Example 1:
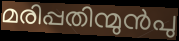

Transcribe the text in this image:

മരിപ്പതിന്മുൻപു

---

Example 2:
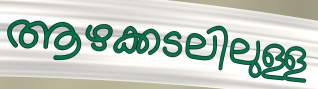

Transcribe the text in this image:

ആഴക്കടലിലുള്ള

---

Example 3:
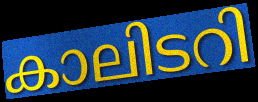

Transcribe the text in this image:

കാലിടറി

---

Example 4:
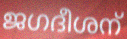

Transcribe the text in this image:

ജഗദീശന്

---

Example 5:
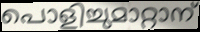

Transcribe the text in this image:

പൊളിച്ചുമാറ്റാന്